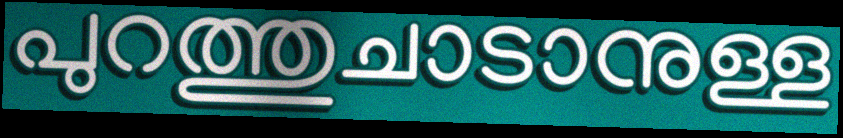
പുറത്തുചാടാനുള്ള